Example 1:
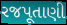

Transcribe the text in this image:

રજપૂતાણી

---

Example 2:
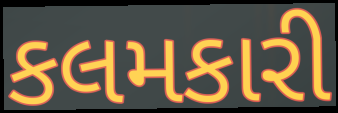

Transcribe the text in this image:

કલમકારી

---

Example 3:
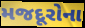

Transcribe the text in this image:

મજદૂરોના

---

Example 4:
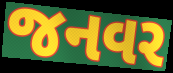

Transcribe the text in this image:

જનવર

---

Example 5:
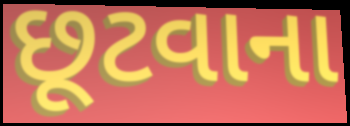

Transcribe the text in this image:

છૂટવાના